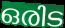
ഒരിട